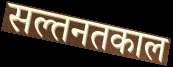
सल्तनतकाल